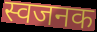
स्वजनक